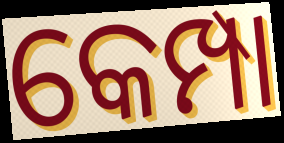
କେମ୍ପା